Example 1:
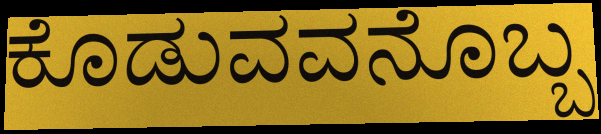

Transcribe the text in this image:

ಕೊಡುವವನೊಬ್ಬ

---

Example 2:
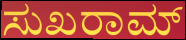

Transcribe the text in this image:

ಸುಖರಾಮ್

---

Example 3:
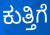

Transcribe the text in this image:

ಕುತ್ತಿಗೆ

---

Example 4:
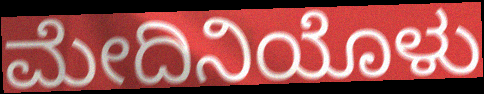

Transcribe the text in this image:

ಮೇದಿನಿಯೊಳು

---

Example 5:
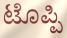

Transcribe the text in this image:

ಟೊಪ್ಪಿ